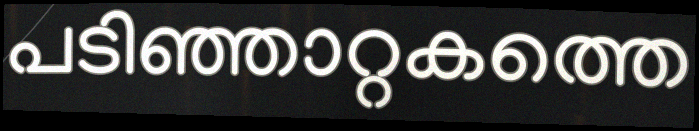
പടിഞ്ഞാറ്റകത്തെ